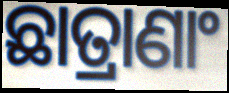
ଛାତ୍ରାଣାଂ